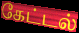
கேட்டல்